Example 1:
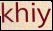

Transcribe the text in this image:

khiy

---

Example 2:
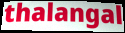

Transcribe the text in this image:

thalangal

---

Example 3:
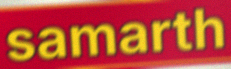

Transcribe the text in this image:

samarth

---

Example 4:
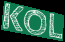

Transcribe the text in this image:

KOL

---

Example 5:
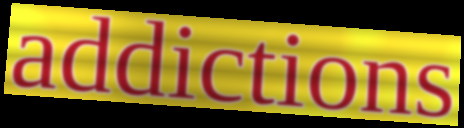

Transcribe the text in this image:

addictions